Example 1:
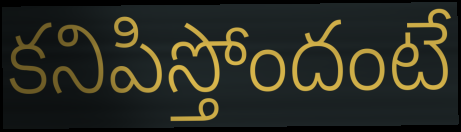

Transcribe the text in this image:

కనిపిస్తోందంటే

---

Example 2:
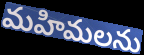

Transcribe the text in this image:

మహిమలను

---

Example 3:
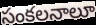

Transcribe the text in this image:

సంకలనాలూ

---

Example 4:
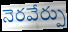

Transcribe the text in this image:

నెరవేర్పు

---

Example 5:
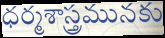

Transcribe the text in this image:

ధర్మశాస్త్రమునకు